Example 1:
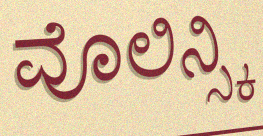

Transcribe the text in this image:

ವೊಲಿನ್ಸ್ಕಿ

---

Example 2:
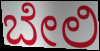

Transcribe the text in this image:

ಬೇಲಿ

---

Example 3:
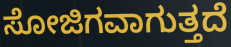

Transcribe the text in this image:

ಸೋಜಿಗವಾಗುತ್ತದೆ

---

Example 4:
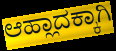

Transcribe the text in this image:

ಆಹ್ಲಾದಕ್ಕಾಗಿ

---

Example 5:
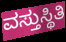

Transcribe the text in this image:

ವಸ್ತುಸ್ಥಿತಿ